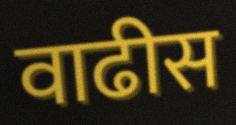
वाढीस